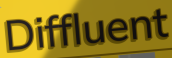
Diffluent